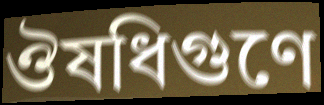
ঔষধিগুণে